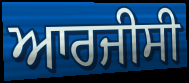
ਆਰਜੀਸੀ